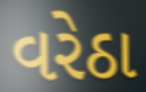
વરેઠા